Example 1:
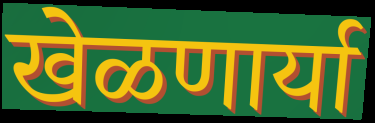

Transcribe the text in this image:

खेळणार्या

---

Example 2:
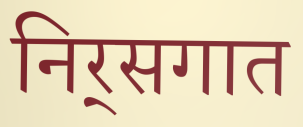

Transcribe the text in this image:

निर्सगात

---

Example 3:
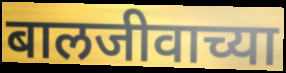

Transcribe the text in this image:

बालजीवाच्या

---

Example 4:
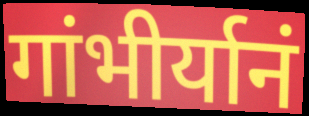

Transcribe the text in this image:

गांभीर्यानं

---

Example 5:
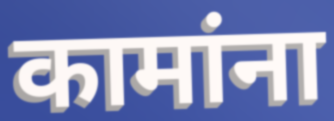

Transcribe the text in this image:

कामांना